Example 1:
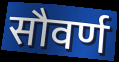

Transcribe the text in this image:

सौवर्ण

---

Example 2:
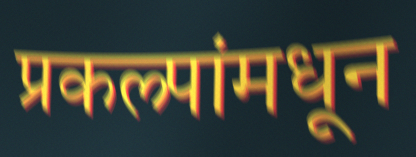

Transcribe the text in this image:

प्रकल्पांमधून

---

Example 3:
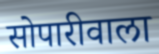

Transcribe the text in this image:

सोपारीवाला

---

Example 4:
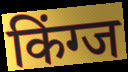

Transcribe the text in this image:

किंग्ज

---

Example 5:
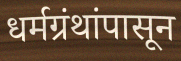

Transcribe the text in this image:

धर्मग्रंथांपासून